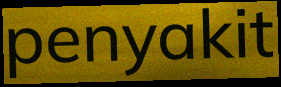
penyakit